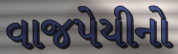
વાજપેયીનો